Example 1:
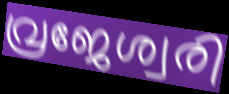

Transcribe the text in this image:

വ്രജേശ്വരി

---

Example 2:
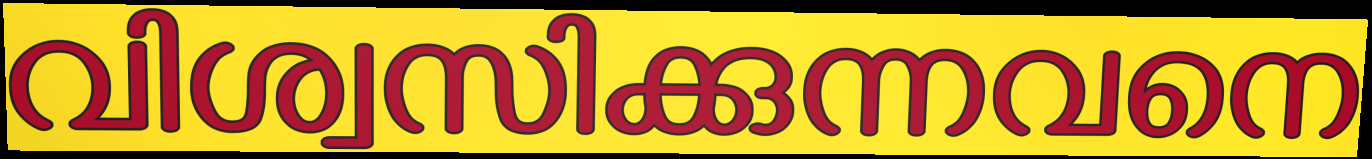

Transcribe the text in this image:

വിശ്വസിക്കുന്നവനെ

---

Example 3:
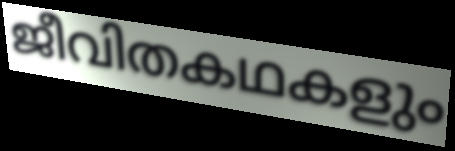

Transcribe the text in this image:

ജീവിതകഥകളും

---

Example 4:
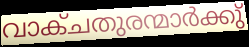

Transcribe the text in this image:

വാക്ചതുരന്മാർക്കു്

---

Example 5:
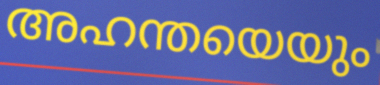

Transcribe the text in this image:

അഹന്തയെയും